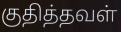
குதித்தவள்